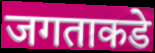
जगताकडे